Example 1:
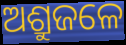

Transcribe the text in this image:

ଅଶ୍ରୁଜଳେ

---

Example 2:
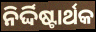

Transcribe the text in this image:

ନିର୍ଦ୍ଦିଷ୍ଟାର୍ଥକ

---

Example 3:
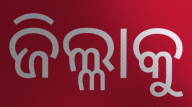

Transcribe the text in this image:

ଜିଲ୍ଳାକୁ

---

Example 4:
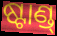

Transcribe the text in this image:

ଷ୍ଟାଣ୍ଡ୍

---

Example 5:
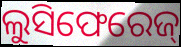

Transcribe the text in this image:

ଲୁସିଫେରେଜ୍